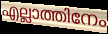
എല്ലാത്തിനേം